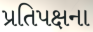
પ્રતિપક્ષના